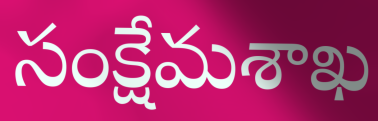
సంక్షేమశాఖ